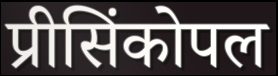
प्रीसिंकोपल